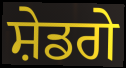
ਸ਼ੇਡਗੇ